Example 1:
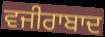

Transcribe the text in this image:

ਵਜੀਰਾਬਾਦ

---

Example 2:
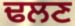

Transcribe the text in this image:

ਢਲਣ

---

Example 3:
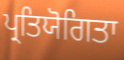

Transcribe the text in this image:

ਪ੍ਰਤਿਯੋਗਿਤਾ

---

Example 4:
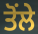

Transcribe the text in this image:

ਤੋਂਲੇ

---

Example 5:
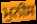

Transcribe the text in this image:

ਮੁਨੀਸ